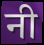
नी